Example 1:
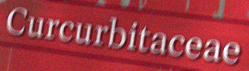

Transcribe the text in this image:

Curcurbitaceae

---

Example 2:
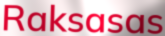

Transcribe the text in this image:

Raksasas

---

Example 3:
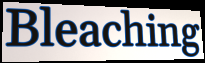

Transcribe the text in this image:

Bleaching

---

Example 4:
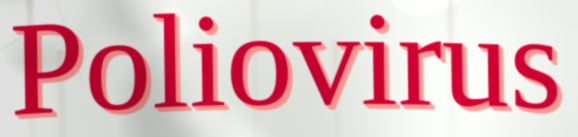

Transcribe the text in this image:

Poliovirus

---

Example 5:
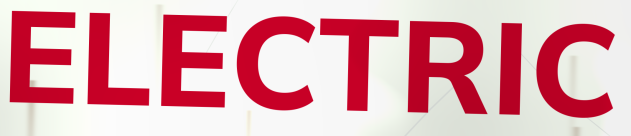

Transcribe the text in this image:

ELECTRIC